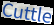
Cuttle